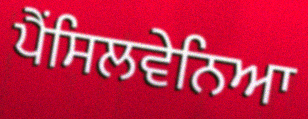
ਪੈਂਸਿਲਵੇਨਿਆ